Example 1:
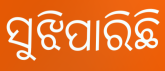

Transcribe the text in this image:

ସୁଝିପାରିଛି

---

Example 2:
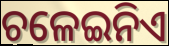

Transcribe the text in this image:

ଚଳେଇନିଏ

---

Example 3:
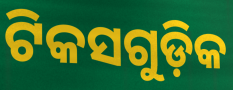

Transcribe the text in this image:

ଟିକସଗୁଡ଼ିକ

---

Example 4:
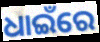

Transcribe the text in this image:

ଧାଇଁରେ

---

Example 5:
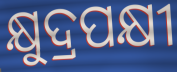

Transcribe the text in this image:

କ୍ଷୁଦ୍ରପକ୍ଷୀ